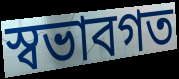
স্বভাবগত